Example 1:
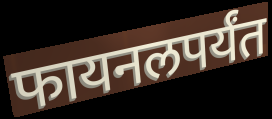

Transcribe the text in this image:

फायनलपर्यंत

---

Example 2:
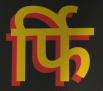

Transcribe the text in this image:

र्फि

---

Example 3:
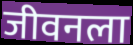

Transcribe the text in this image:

जीवनला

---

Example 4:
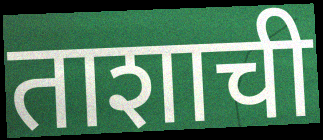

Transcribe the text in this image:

ताशाची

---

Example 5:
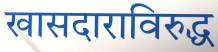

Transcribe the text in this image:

खासदाराविरुद्ध